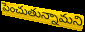
పెంచుతున్నామని